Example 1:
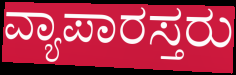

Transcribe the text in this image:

ವ್ಯಾಪಾರಸ್ತರು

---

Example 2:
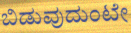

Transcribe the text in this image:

ಬಿಡುವುದುಂಟೇ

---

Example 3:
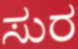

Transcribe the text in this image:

ಸುರ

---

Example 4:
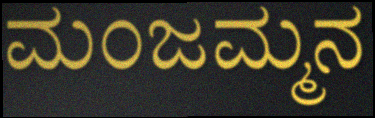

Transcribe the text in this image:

ಮಂಜಮ್ಮನ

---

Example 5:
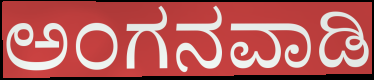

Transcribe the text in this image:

ಅಂಗನವಾಡಿ